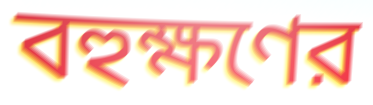
বহুক্ষণের